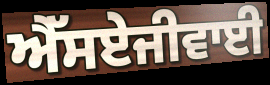
ਐੱਸਏਜੀਵਾਈ